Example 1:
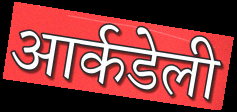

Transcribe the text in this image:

आर्कडेली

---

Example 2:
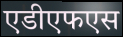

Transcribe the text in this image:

एडीएफएस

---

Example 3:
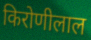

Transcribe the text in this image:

किरोणीलाल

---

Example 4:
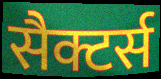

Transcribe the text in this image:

सैक्टर्स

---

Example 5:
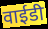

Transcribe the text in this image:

वाईडी